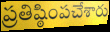
ప్రతిష్ఠింపచేశారు